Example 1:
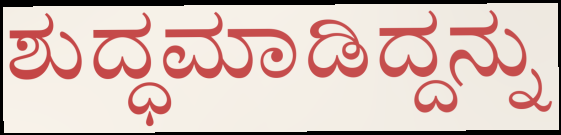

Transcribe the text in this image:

ಶುದ್ಧಮಾಡಿದ್ದನ್ನು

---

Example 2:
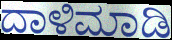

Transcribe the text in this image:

ದಾಳಿಮಾಡಿ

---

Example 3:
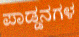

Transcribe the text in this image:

ಪಾಡ್ಡನಗಳ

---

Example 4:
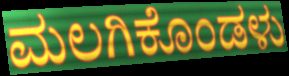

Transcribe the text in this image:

ಮಲಗಿಕೊಂಡಳು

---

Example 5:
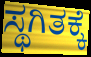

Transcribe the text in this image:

ಸ್ಥಗಿತಕ್ಕೆ